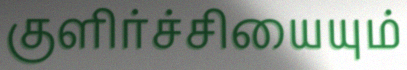
குளிர்ச்சியையும்